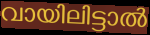
വായിലിട്ടാൽ